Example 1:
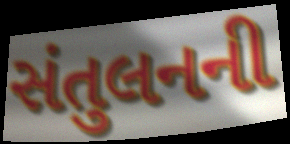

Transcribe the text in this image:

સંતુલનની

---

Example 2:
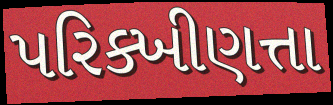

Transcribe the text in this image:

પરિક્ખીણત્તા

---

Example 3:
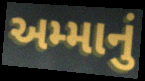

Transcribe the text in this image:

અમ્માનું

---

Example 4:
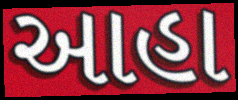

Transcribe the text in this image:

આહા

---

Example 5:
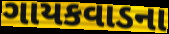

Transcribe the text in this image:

ગાયકવાડના